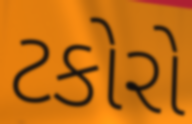
ટકોરો